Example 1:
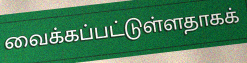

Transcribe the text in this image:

வைக்கப்பட்டுள்ளதாகக்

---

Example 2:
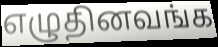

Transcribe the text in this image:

எழுதினவங்க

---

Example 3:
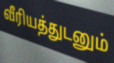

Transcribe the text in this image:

வீரியத்துடனும்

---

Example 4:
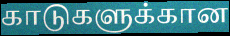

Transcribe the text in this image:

காடுகளுக்கான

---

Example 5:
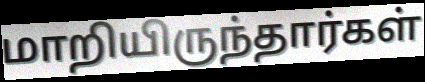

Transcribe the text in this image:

மாறியிருந்தார்கள்